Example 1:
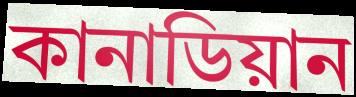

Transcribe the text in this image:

কানাডিয়ান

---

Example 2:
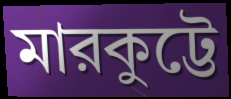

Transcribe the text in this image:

মারকুট্টে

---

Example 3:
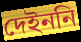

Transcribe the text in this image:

দেইননি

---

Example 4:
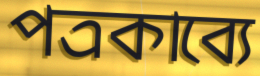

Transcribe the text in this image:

পত্রকাব্যে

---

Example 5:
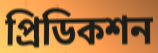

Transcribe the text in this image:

প্রিডিকশন